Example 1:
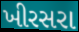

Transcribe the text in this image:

ખીરસરા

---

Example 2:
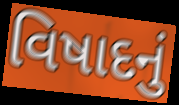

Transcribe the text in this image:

વિષાદનું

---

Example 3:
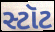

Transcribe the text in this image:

સ્ટૉટ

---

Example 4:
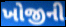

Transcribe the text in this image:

ખોજીની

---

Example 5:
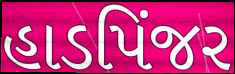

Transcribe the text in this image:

હાડપિંજર